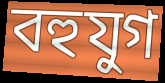
বহুযুগ